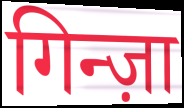
गिन्ज़ा